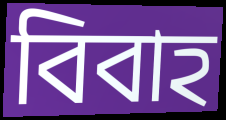
বিবাহ